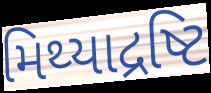
મિથ્યાદ્રષ્ટિ